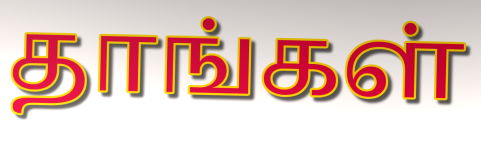
தாங்கள்